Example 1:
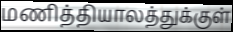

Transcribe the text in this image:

மணித்தியாலத்துக்குள்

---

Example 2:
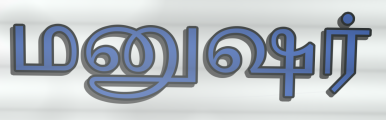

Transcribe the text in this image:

மனுஷர்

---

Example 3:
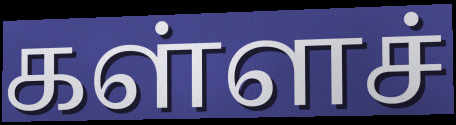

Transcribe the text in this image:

கள்ளச்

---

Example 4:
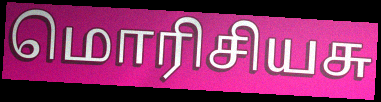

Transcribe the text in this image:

மொரிசியசு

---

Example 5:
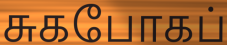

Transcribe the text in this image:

சுகபோகப்